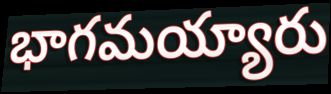
భాగమయ్యారు